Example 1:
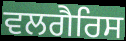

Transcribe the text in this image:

ਵਲਗੈਰਿਸ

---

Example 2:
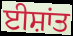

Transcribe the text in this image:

ਈਸ਼ਾਂਤ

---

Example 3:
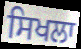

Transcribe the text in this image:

ਸਿਖਲਾ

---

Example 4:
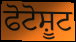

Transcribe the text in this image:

ਫੋਟੋਸ਼ੂਟ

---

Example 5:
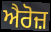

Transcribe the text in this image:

ਐਰੋਜ਼